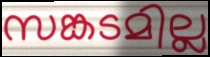
സങ്കടമില്ല